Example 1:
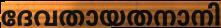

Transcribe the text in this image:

ദേവതായതനാനി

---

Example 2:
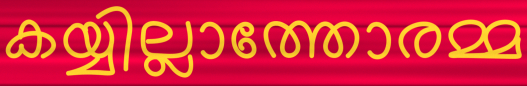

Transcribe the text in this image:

കയ്യില്ലാത്തോരമ്മ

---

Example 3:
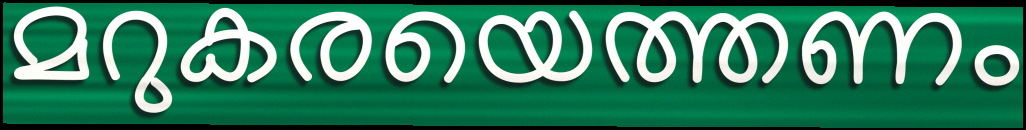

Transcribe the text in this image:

മറുകരയെത്തണം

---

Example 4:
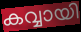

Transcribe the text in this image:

കവ്വായി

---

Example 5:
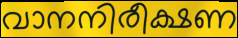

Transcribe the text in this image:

വാനനിരീക്ഷണ